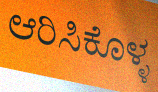
ಆರಿಸಿಕೊಳ್ಳ